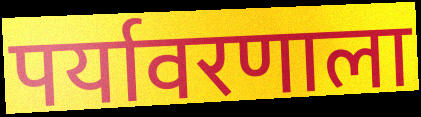
पर्यावरणाला